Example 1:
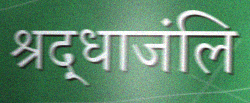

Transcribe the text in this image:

श्रद्धाजंलि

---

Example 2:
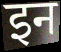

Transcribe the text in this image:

इन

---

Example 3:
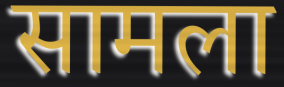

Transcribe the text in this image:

सामला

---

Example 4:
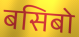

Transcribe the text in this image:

बसिबो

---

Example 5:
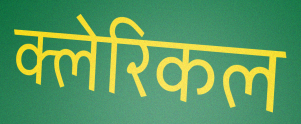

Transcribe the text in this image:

क्लेरिकल